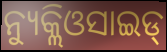
ନ୍ୟୁକ୍ଲିଓସାଇଡ୍